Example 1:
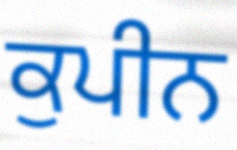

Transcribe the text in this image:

ਕੁਪੀਨ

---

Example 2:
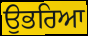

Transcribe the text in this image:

ਉਭਰਿਆ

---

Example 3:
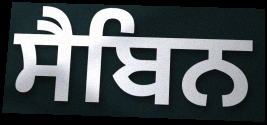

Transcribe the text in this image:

ਸੈਬਿਨ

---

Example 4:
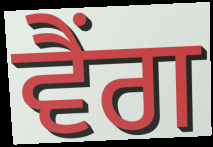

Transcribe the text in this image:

ਵੈਂਗ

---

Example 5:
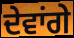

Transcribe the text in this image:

ਦੇਵਾਂਗੇ